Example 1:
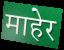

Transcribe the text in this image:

माहेर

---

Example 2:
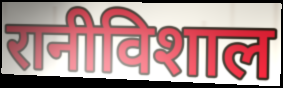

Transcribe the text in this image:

रानीविशाल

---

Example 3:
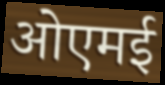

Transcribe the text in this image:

ओएमई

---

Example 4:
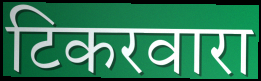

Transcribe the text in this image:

टिकरवारा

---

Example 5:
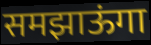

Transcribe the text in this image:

समझाऊंगा